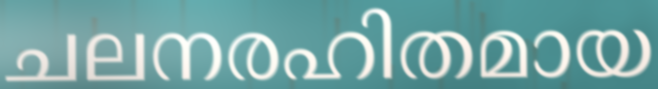
ചലനരഹിതമായ